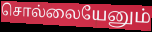
சொல்லையேனும்